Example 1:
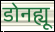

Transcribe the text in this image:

डोनह्यू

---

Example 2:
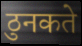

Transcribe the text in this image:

ठुनकते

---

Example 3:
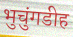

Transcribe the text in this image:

भुचुंगडीह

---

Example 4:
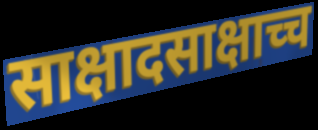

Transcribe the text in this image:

साक्षादसाक्षाच्च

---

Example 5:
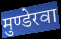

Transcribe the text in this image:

मुण्डेरवा